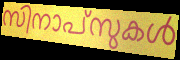
സിനാപ്സുകൾ